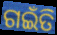
ଗଇଁତି